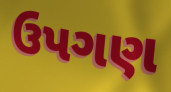
ઉપગણ